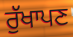
ਰੁੱਖਾਪਣ